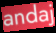
andaj